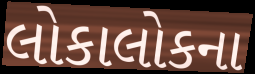
લોકાલોકના